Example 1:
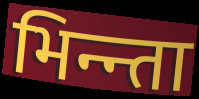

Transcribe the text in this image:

भिन्न्ता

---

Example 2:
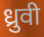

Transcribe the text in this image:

ध्रुवी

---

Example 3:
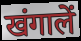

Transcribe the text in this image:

खंगालें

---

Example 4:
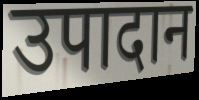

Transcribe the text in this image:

उपादान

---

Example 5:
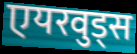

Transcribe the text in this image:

एयरवुड्स